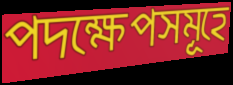
পদক্ষেপসমূহে